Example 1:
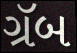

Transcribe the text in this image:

ગ્રૅબ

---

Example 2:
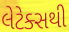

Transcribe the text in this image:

લેટેક્સથી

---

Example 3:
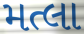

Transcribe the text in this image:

મત્લા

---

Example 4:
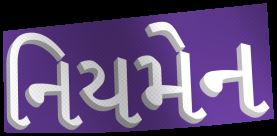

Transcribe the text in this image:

નિયમેન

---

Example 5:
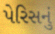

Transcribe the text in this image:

પેરિસનું